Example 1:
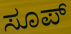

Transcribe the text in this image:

ಸೂಪ್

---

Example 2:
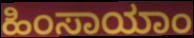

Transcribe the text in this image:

ಹಿಂಸಾಯಾಂ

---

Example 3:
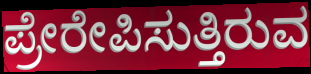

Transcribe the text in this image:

ಪ್ರೇರೇಪಿಸುತ್ತಿರುವ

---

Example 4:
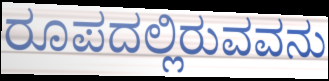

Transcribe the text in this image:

ರೂಪದಲ್ಲಿರುವವನು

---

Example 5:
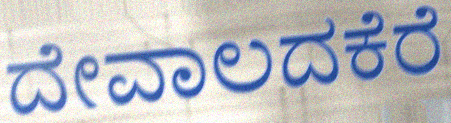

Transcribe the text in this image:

ದೇವಾಲದಕೆರೆ